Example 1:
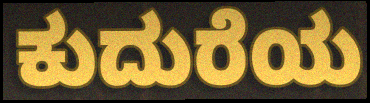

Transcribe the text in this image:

ಕುದುರೆಯ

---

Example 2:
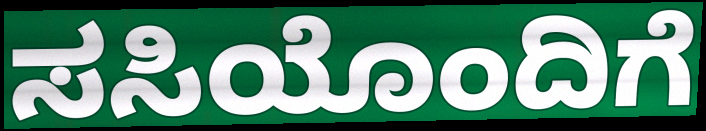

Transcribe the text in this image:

ಸಸಿಯೊಂದಿಗೆ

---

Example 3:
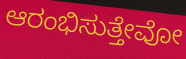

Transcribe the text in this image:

ಆರಂಭಿಸುತ್ತೇವೋ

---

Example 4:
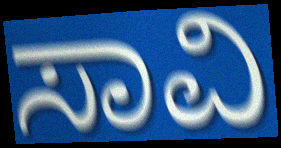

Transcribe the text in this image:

ಸಾವಿ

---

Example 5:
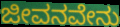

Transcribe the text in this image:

ಜೀವನವೇನು